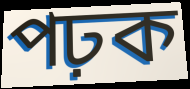
পঢ়ক